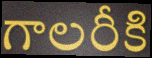
గాలరీకి